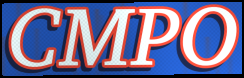
CMPO